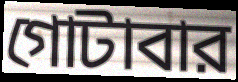
গোটাবার